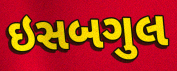
ઇસબગુલ